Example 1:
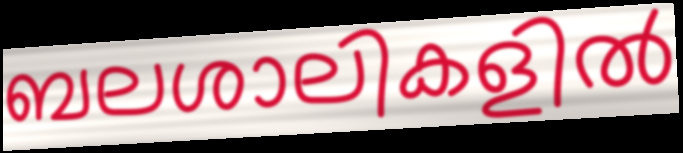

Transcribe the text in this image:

ബലശാലികളിൽ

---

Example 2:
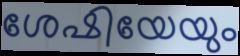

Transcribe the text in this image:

ശേഷിയേയും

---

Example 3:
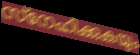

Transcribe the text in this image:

സ്‌നേഹിക്കുകയും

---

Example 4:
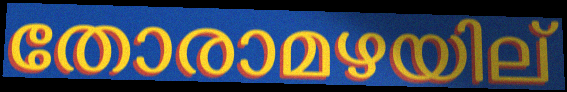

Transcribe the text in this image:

തോരാമഴയില്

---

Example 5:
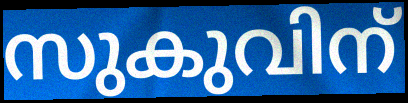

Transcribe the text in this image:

സുകുവിന്